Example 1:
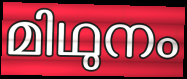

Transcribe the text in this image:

മിഥുനം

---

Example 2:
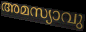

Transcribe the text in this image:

അമസ്യാവു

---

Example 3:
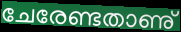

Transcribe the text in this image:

ചേരേണ്ടതാണു്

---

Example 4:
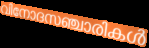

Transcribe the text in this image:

വിനോദസഞ്ചാരികൾ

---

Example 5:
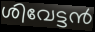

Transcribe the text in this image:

ശിവേട്ടൻ